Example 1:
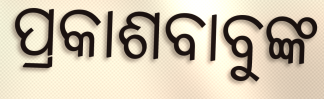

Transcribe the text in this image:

ପ୍ରକାଶବାବୁଙ୍କ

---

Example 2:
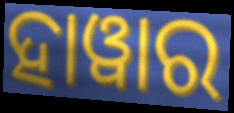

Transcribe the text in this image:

ହାୱାର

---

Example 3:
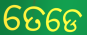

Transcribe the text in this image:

ତେଡେ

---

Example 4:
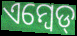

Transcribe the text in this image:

ଏମ୍ବେଡ୍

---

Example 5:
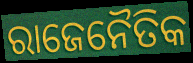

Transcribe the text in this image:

ରାଜେନୈତିକ